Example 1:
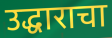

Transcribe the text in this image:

उद्धाराचा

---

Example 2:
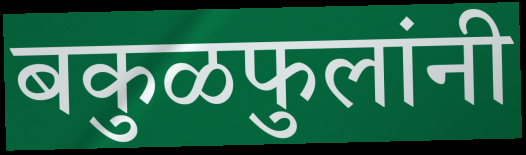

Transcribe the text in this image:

बकुळफुलांनी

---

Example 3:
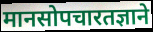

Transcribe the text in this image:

मानसोपचारतज्ञाने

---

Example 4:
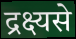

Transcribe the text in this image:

द्रक्ष्यसे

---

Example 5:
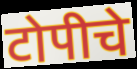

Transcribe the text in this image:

टोपीचे